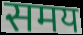
समय